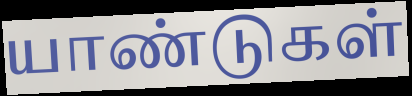
யாண்டுகள்